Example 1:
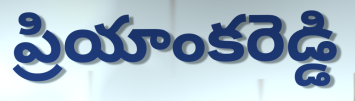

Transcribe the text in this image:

ప్రియాంకరెడ్డి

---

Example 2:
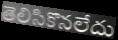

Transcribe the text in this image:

తెలిసికొనలేదు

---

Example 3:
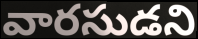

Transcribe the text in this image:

వారసుడని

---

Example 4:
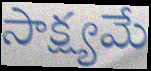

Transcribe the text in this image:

సాక్ష్యమే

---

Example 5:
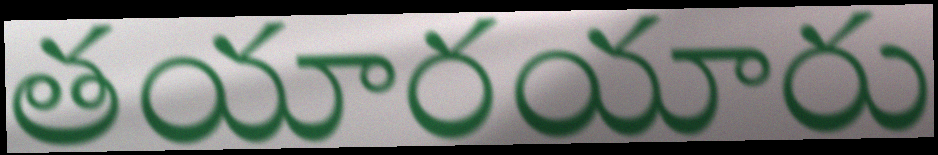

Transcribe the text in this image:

తయారయారు